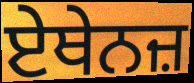
ਏਥੇਨਜ਼